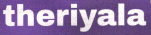
theriyala